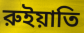
রুইয়াতি